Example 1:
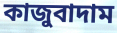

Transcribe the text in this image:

কাজুবাদাম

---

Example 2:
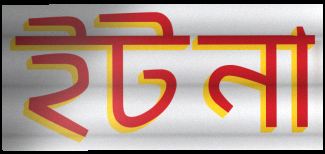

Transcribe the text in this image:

ইটনা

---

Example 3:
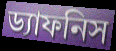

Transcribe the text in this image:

ড্যাফনিস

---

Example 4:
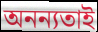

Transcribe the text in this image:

অনন্যতাই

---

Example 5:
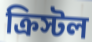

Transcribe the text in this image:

ক্রিস্টল